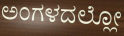
ಅಂಗಳದಲ್ಲೋ